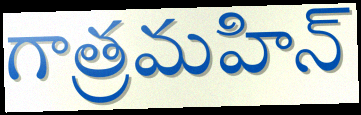
గాత్రమహిన్